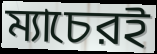
ম্যাচেরই